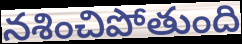
నశించిపోతుంది